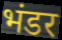
भंडर